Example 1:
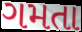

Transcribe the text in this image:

ગમતા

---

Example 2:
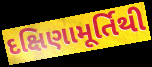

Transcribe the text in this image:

દક્ષિણામૂર્તિથી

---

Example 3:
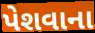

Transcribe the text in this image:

પેશવાના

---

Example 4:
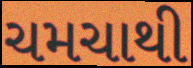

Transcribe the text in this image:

ચમચાથી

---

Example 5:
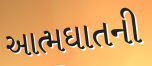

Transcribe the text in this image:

આત્મઘાતની